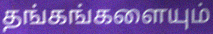
தங்கங்களையும்